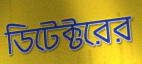
ডিটেক্টরের